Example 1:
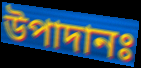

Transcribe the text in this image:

উপাদানঃ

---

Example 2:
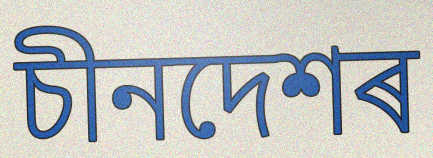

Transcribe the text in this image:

চীনদেশৰ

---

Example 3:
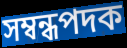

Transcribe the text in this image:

সম্বন্ধপদক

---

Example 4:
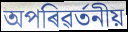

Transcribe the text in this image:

অপৰিৱৰ্তনীয়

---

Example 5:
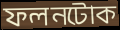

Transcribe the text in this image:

ফলনটোক